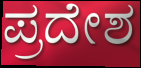
ಪ್ರದೇಶ